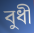
বুধী